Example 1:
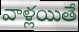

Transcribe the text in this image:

వాళ్లయితే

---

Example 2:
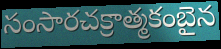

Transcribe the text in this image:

సంసారచక్రాత్మకంబైన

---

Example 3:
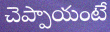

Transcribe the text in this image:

చెప్పాయంటే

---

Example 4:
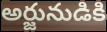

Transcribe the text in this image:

అర్జునుడికి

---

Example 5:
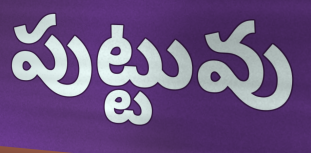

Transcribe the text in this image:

పుట్టువు